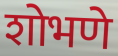
शोभणे